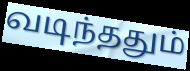
வடிந்ததும்